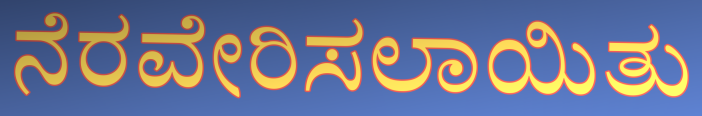
ನೆರವೇರಿಸಲಾಯಿತು